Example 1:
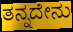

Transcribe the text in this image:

ತನ್ನದೇನು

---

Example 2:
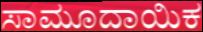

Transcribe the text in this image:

ಸಾಮೂದಾಯಿಕ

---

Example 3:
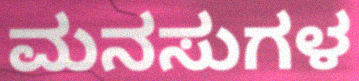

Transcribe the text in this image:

ಮನಸುಗಳ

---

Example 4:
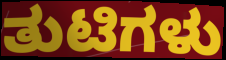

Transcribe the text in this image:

ತುಟಿಗಳು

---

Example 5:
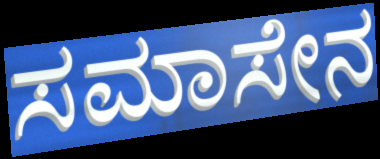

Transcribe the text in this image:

ಸಮಾಸೇನ